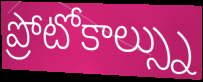
ప్రోటోకాల్స్ను